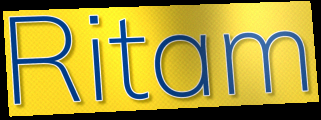
Ritam